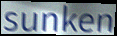
sunken